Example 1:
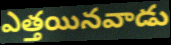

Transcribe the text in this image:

ఎత్తయినవాడు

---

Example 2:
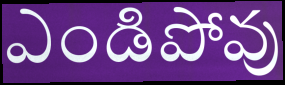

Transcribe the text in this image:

ఎండిపోవు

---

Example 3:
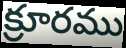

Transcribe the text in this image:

క్రూరము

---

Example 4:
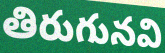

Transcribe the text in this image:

తిరుగునవి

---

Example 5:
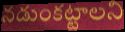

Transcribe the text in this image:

నడుంకట్టాలని